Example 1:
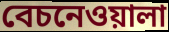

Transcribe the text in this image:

বেচনেওয়ালা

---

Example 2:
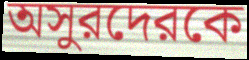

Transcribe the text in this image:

অসুরদেরকে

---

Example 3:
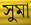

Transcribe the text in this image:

সুমা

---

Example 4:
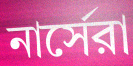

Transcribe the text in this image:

নার্সেরা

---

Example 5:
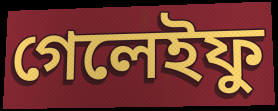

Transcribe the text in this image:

গেলেইফু